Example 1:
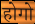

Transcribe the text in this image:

होगो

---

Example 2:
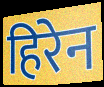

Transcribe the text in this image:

हिरेन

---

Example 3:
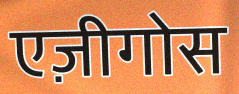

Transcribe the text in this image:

एज़ीगोस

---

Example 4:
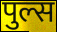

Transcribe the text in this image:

पुल्स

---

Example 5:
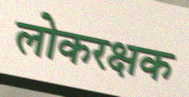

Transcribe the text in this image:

लोकरक्षक